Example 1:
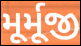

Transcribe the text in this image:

મૂર્મૂજી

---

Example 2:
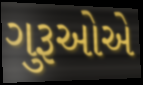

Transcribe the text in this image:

ગુરૂઓએ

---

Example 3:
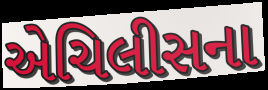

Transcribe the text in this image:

એચિલીસના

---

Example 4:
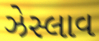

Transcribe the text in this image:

ઝેસ્લાવ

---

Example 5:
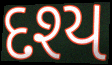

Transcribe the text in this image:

દશ્ય